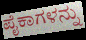
ಪೈಕಾಗಳನ್ನು